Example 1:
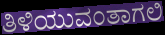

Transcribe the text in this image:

ತಿಳಿಯುವಂತಾಗಲಿ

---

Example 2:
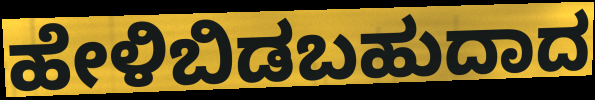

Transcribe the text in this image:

ಹೇಳಿಬಿಡಬಹುದಾದ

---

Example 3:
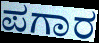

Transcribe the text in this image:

ಪಗಾರ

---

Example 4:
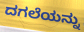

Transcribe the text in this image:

ದಗಲೆಯನ್ನು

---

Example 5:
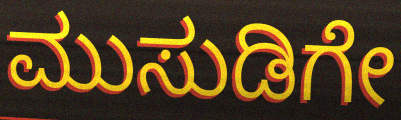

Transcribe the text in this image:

ಮುಸುಡಿಗೇ